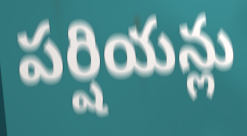
పర్షియన్లు